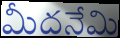
మీదనేమి